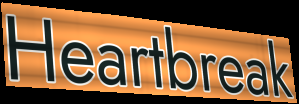
Heartbreak